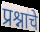
प्रश्नाचे